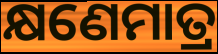
କ୍ଷଣେମାତ୍ର